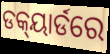
ଡକ୍‍ୟାର୍ଡରେ